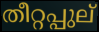
തീറ്റപ്പുല്